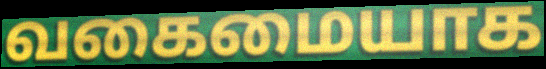
வகைமையாக